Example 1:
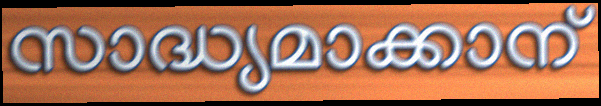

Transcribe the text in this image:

സാദ്ധ്യമാക്കാന്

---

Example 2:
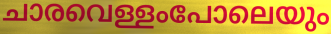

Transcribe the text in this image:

ചാരവെള്ളംപോലെയും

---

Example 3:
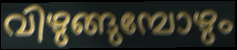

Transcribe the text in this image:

വിഴുങ്ങുമ്പോഴും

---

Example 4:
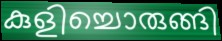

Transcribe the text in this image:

കുളിച്ചൊരുങ്ങി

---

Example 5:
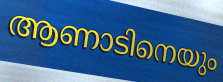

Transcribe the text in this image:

ആണാടിനെയും